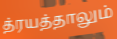
த்ரயத்தாலும்